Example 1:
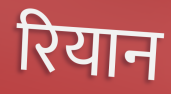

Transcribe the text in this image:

रियान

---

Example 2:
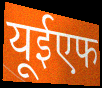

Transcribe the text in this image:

यूईएफ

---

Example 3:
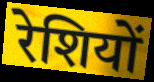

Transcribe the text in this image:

रेशियों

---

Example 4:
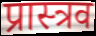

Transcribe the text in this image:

प्रास्त्रव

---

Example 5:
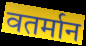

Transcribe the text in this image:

वतर्मान